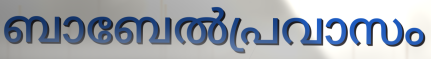
ബാബേൽപ്രവാസം